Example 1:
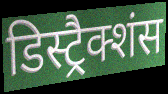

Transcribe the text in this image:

डिस्ट्रैक्शंस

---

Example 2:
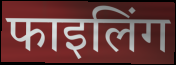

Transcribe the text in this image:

फाइलिंग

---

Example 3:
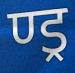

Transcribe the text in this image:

ण्ड्र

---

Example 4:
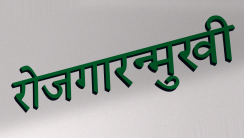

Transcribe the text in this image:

रोजगारन्मुखी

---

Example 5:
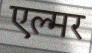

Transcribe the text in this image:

एल्मर